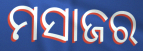
ମସାଜର